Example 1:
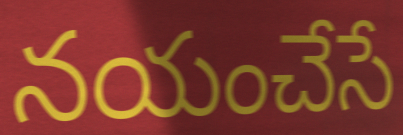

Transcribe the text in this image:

నయంచేసే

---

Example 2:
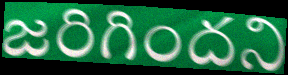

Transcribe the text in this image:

జరిగిందని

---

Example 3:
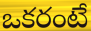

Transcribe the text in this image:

ఒకరంటే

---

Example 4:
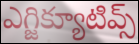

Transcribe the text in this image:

ఎగ్జిక్యూటివ్స్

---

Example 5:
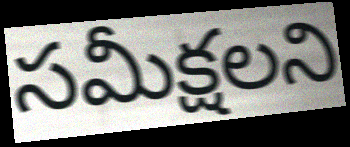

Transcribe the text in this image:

సమీక్షలని